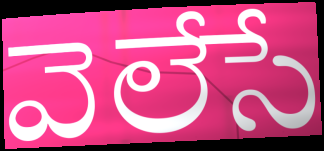
వెలేసే